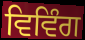
ਵਿਵਿੰਗ